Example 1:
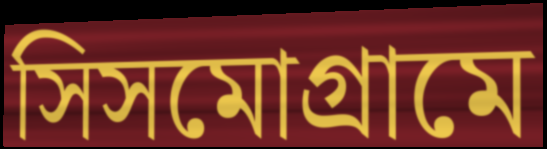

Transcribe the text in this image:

সিসমোগ্রামে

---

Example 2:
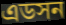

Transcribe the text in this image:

এডসন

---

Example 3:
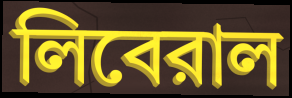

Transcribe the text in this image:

লিবেরাল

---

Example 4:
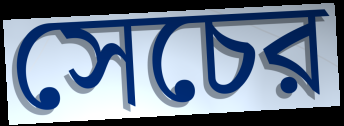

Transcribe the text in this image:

সেচের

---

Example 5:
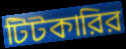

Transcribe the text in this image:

টিটকারির